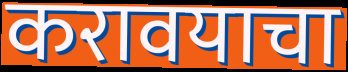
करावयाचा